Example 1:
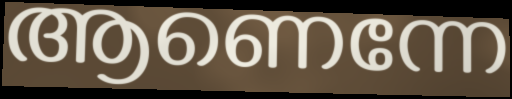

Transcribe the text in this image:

ആണെന്നേ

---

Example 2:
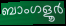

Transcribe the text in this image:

ബാംഗളൂർ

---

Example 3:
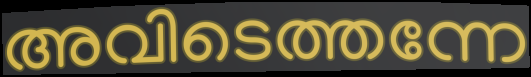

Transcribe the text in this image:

അവിടെത്തന്നേ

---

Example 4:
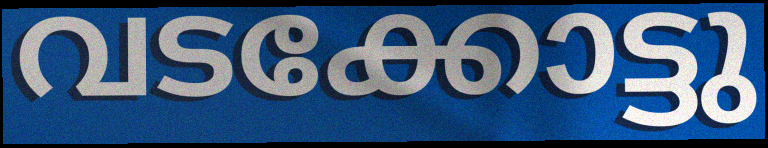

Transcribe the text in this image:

വടക്കോട്ടു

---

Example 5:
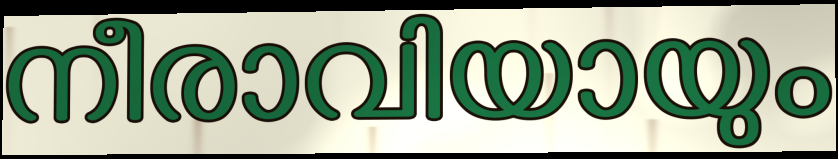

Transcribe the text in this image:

നീരാവിയായും